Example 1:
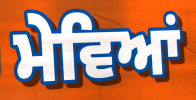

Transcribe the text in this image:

ਮੇਵਿਆਂ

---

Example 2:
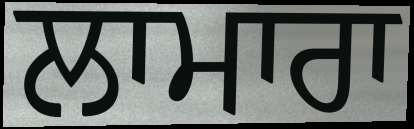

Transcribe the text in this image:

ਲਾਮਾਰਾ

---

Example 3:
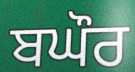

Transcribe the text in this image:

ਬਘੌਰ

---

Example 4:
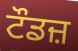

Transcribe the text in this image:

ਟੌਡਜ਼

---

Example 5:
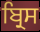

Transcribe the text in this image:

ਬ੍ਰਿਸ